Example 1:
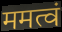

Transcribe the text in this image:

ममत्वं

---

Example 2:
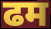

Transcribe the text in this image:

ढम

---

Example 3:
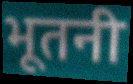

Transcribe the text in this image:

भूतनी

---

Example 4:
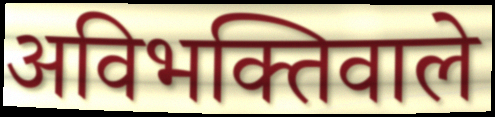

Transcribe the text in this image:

अविभक्तिवाले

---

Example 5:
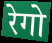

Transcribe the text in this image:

रेगो